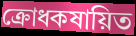
ক্রোধকষায়িত